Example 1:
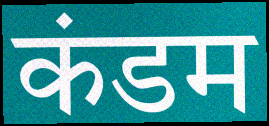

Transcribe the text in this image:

कंडम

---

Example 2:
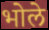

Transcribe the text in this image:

भोले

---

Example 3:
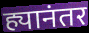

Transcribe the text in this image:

ह्यानंतर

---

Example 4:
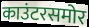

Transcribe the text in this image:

काउंटरसमोर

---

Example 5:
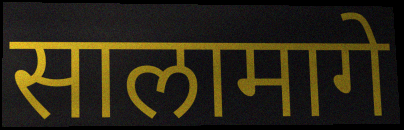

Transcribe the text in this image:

सालामागे